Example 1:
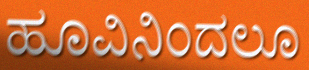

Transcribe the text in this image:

ಹೂವಿನಿಂದಲೂ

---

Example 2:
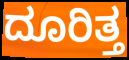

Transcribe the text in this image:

ದೂರಿತ್ತ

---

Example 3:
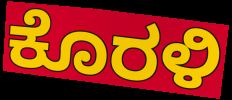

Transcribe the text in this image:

ಕೊರಳಿ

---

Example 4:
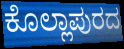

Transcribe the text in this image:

ಕೊಲ್ಲಾಪುರದ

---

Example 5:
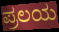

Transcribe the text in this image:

ಪ್ರಲಯ